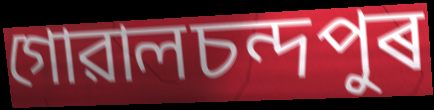
গোৱালচন্দপুৰ